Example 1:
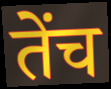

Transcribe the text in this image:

तेंच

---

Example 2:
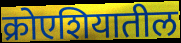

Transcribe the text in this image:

क्रोएशियातील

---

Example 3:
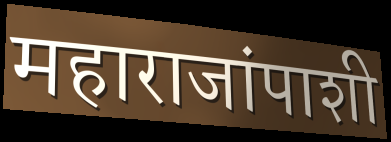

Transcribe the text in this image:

महाराजांपाशी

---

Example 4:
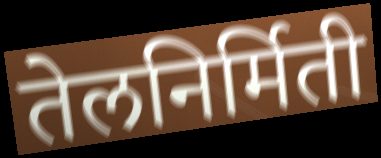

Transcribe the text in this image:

तेलनिर्मिती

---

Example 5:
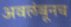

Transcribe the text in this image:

अवलंबूनच